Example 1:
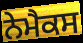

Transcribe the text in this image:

ਨੇਮੈਕਸ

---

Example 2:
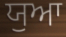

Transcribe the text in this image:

ਯੁਆ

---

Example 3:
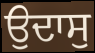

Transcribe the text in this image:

ਉਦਾਸੁ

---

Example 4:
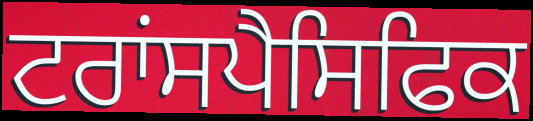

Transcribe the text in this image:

ਟਰਾਂਸਪੈਸਿਫਿਕ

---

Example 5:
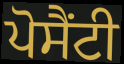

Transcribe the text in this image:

ਪੋਸੈਂਟੀ